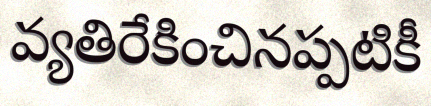
వ్యతిరేకించినప్పటికీ